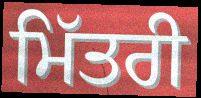
ਮਿੱਤਰੀ